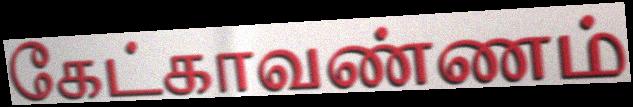
கேட்காவண்ணம்